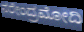
ನರೇಂದ್ರಮೋದಿ